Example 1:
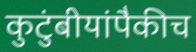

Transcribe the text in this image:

कुटुंबीयांपैकीच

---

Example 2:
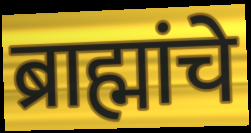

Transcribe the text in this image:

ब्राह्मांचे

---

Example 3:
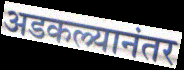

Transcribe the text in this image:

अडकल्यानंतर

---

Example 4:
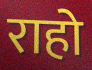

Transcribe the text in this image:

राहो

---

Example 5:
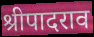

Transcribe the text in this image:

श्रीपादराव